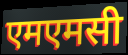
एमएमसी